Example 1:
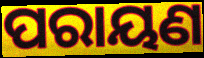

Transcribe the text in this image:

ପରାୟଣ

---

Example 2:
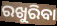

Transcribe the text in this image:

ରଖୁରିବା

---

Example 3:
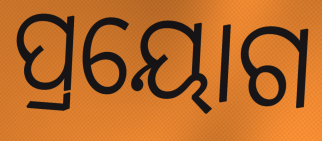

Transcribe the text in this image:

ପ୍ରୟୋଗ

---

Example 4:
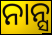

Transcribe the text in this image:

ନାନ୍ସ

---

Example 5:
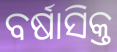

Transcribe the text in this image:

ବର୍ଷାସିକ୍ତ